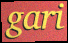
gari